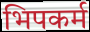
भिपकर्म